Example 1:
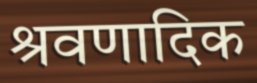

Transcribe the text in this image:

श्रवणादिक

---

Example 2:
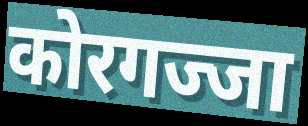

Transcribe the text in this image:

कोरगज्जा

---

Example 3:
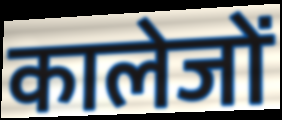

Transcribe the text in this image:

कालेजों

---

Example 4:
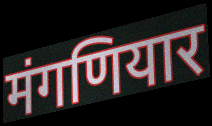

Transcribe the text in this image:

मंगणियार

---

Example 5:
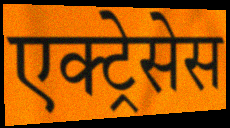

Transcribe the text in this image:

एक्ट्रेसेस